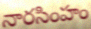
నారసింహం